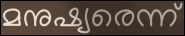
മനുഷ്യരെന്ന്